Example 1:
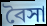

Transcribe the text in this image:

বৈসা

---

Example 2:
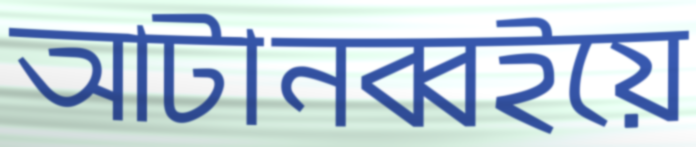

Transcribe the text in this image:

আটানব্বইয়ে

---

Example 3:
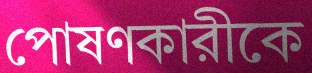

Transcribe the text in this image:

পোষণকারীকে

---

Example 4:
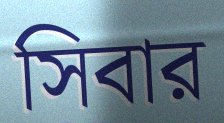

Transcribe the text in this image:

সিবার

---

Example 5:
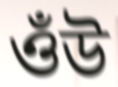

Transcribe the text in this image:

ওঁউ